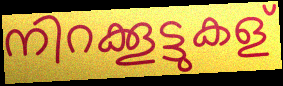
നിറക്കൂട്ടുകള്